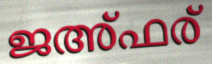
ജഅ്ഫര്